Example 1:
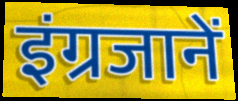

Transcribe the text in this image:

इंग्रजानें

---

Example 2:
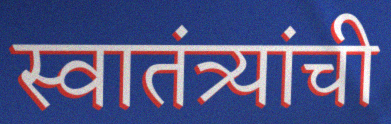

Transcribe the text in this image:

स्वातंत्र्यांची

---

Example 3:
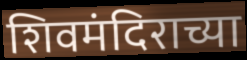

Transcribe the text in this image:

शिवमंदिराच्या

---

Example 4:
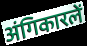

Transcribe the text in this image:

अंगिकारलें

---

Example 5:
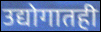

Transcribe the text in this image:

उद्योगातही